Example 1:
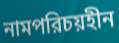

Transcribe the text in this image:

নামপরিচয়হীন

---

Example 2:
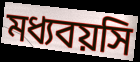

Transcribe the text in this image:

মধ্যবয়সি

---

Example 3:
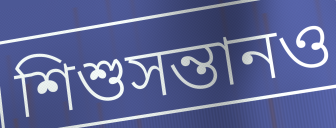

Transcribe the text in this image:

শিশুসন্তানও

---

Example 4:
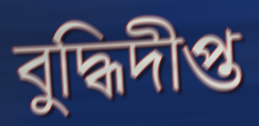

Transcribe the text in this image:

বুদ্ধিদীপ্ত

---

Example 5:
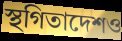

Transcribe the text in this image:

স্থগিতাদেশও